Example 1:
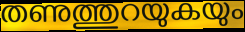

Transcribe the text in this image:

തണുത്തുറയുകയും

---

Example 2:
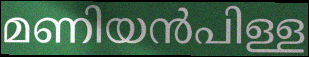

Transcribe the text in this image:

മണിയൻപിള്ള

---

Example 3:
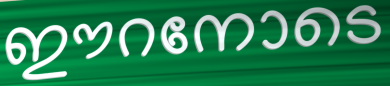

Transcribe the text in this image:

ഈറനോടെ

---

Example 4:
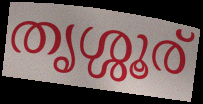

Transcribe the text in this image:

തൃശ്ശൂര്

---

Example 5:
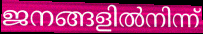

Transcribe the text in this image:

ജനങ്ങളിൽനിന്ന്